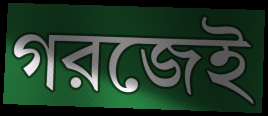
গরজেই